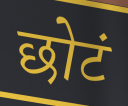
छोटं